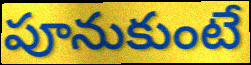
పూనుకుంటే